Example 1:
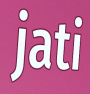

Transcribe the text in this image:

jati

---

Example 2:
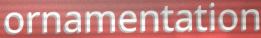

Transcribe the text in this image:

ornamentation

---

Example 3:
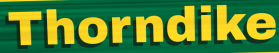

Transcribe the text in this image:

Thorndike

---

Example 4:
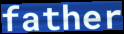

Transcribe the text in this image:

father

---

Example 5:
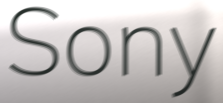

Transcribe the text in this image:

Sony